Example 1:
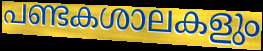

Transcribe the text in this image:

പണ്ടകശാലകളും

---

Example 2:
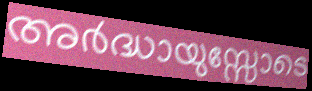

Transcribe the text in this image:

അർദ്ധായുസ്സോടെ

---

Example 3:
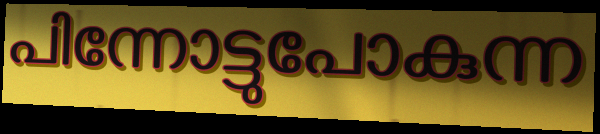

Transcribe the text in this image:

പിന്നോട്ടുപോകുന്ന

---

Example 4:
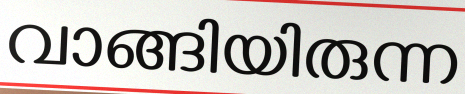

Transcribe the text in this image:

വാങ്ങിയിരുന്ന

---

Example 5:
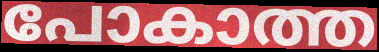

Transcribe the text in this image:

പോകാത്ത